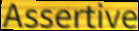
Assertive